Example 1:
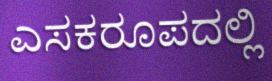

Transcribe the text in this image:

ಎಸಕರೂಪದಲ್ಲಿ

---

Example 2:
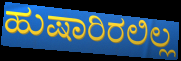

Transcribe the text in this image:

ಹುಷಾರಿರಲಿಲ್ಲ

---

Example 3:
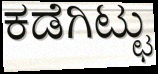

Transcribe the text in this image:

ಕಡೆಗಿಟ್ಟು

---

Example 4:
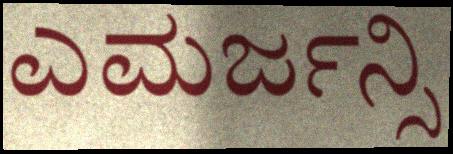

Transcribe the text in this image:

ಎಮರ್ಜನ್ಸಿ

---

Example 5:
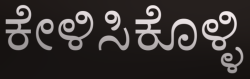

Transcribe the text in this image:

ಕೇಳಿಸಿಕೊಳ್ಳಿ